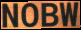
NOBW